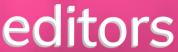
editors